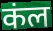
कंल